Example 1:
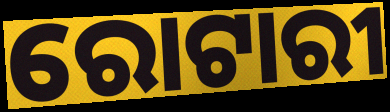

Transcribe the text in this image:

ରୋଟାରୀ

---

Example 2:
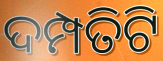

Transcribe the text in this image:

ଦମ୍ପତିଟି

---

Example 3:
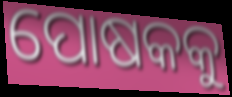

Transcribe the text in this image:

ପୋଷକକୁ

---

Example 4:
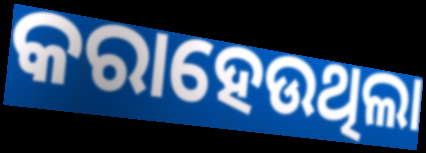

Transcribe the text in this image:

କରାହେଉଥିଲା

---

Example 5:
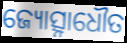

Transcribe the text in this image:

ଜ୍ୟୋତ୍ସ୍ନାଧୌତ